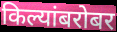
किल्यांबरोबर